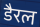
डैरल